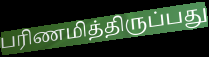
பரிணமித்திருப்பது